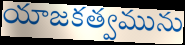
యాజకత్వమును